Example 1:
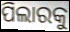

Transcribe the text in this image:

ପିଲାରକୁ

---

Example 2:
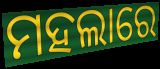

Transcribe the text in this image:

ମହଲାରେ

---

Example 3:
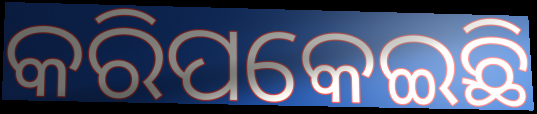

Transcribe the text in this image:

କରିପକେଇଛି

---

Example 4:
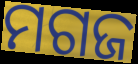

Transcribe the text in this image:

ମଗଜ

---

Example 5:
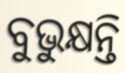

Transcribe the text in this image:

ବୁଭୁକ୍ଷନ୍ତି